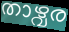
താഴ്വര